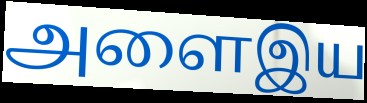
அளைஇய